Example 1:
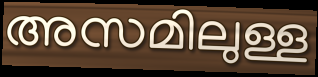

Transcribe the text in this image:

അസമിലുള്ള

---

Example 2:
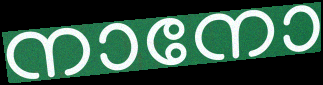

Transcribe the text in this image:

നാനോ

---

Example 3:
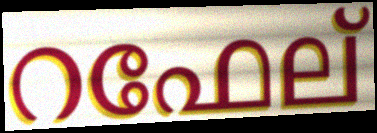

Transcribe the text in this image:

റഫേല്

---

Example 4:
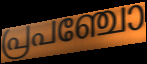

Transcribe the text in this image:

പ്രപഞ്ചോ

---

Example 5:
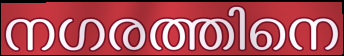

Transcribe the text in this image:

നഗരത്തിനെ